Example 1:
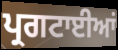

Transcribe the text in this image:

ਪ੍ਰਗਟਾਈਆਂ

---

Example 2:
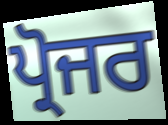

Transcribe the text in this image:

ਪ੍ਰੋਜਰ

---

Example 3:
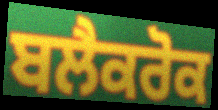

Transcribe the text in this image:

ਬਲੈਕਰੋਕ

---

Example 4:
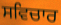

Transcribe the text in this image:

ਸਵਿਚਾਰ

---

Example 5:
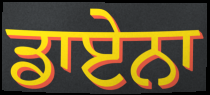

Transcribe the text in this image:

ਡਾਏਨਾ